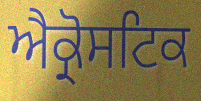
ਐਕ੍ਰੋਸਟਿਕ